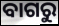
ବାଗରୁ